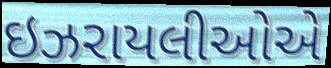
ઇઝરાયલીઓએ